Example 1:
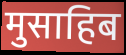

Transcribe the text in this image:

मुसाहिब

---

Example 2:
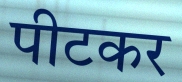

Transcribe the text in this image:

पीटकर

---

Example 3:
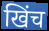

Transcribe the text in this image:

खिंच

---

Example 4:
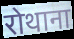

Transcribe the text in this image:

रोथाना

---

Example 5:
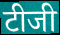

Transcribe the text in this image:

टीजी